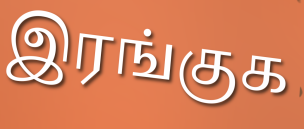
இரங்குக